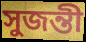
সুজন্তী